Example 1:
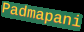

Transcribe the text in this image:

Padmapani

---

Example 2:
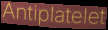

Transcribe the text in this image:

Antiplatelet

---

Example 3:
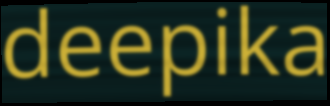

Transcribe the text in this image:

deepika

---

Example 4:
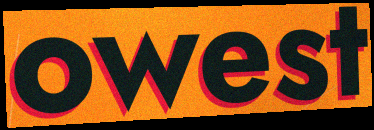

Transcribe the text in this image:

owest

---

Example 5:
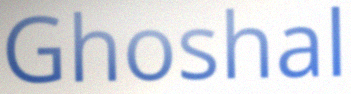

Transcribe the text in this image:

Ghoshal